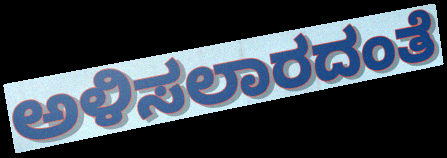
ಅಳಿಸಲಾರದಂತೆ